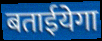
बताईयेगा